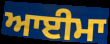
ਆਈਮਾ